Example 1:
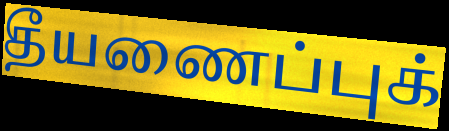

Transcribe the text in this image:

தீயணைப்புக்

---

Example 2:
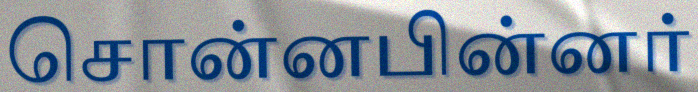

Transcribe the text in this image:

சொன்னபின்னர்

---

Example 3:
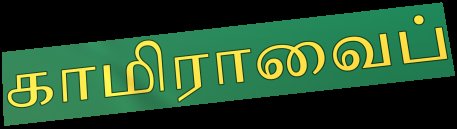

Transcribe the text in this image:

காமிராவைப்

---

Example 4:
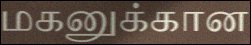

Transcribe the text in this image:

மகனுக்கான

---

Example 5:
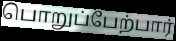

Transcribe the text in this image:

பொறுப்பேற்பார்